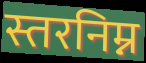
स्तरनिम्न